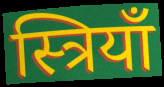
स्त्रियाँ